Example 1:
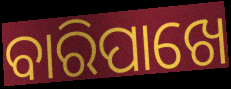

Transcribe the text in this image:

ବାରିପାଖେ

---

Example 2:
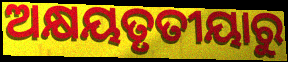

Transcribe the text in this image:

ଅକ୍ଷୟତୃତୀୟାରୁ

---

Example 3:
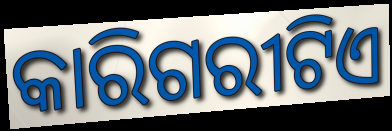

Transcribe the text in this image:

କାରିଗରୀଟିଏ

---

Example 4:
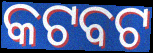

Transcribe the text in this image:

କଟବଟ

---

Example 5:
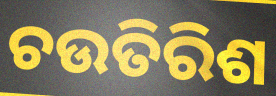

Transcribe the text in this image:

ଚଉତିରିଶ